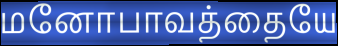
மனோபாவத்தையே